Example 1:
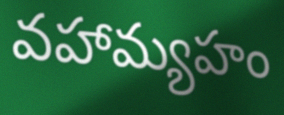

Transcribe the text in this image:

వహామ్యహం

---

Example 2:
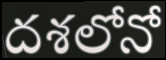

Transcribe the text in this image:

దశలోనో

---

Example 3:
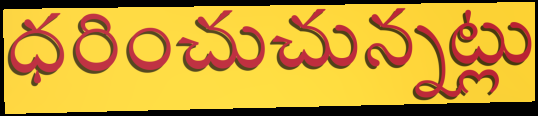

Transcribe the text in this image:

ధరించుచున్నట్లు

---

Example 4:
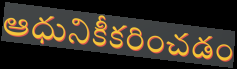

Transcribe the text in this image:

ఆధునికీకరించడం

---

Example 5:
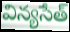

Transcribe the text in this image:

విన్యసేత్